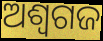
ଅଶ୍ୱଗଜ